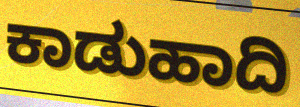
ಕಾಡುಹಾದಿ